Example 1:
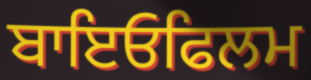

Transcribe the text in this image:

ਬਾਇਓਫਿਲਮ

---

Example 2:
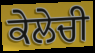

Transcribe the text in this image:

ਕੇਲੇਚੀ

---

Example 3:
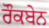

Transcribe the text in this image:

ਰੌਕਬੇਨ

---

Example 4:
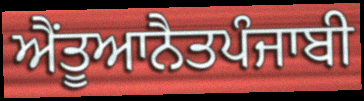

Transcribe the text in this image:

ਐਂਤੂਆਨੈਤਪੰਜਾਬੀ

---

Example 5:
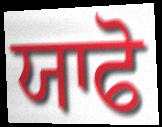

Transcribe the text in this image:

ਯਾਫੋ